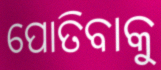
ପୋତିବାକୁ